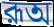
রূঅ